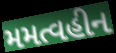
મમત્વહીન